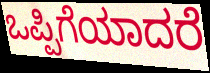
ಒಪ್ಪಿಗೆಯಾದರೆ